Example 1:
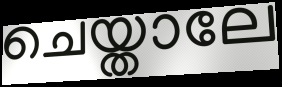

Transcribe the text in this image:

ചെയ്താലേ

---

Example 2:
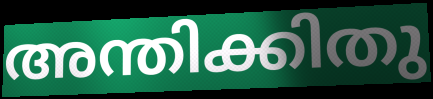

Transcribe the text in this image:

അന്തിക്കിതു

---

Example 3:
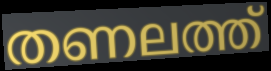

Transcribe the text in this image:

തണലത്ത്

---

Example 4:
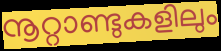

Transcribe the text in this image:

നൂറ്റാണ്ടുകളിലും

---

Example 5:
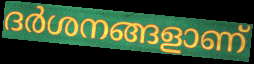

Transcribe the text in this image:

ദർശനങ്ങളാണ്